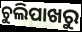
ଚୁଲିପାଖରୁ